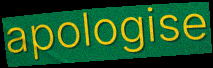
apologise